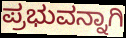
ಪ್ರಭುವನ್ನಾಗಿ